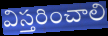
విస్తరించాలి